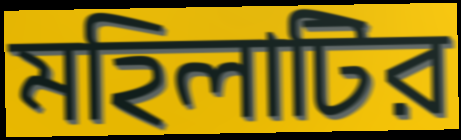
মহিলাটির